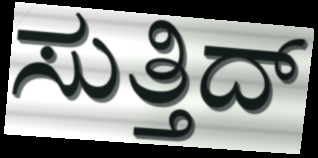
ಸುತ್ತಿದ್